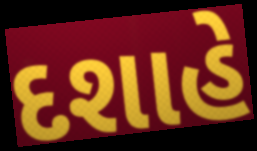
દશાહે